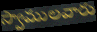
స్వాములవారు